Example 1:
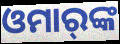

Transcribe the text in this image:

ଓମାର୍‌ଙ୍କ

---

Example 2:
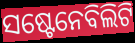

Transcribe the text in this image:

ସଷ୍ଟେନେବିଲିଟି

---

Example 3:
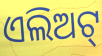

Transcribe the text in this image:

ଏଲିଅଟ୍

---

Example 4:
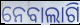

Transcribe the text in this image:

ନେବାଲାଗି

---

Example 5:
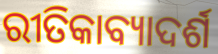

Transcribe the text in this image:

ରୀତିକାବ୍ୟାଦର୍ଶ